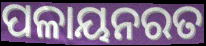
ପଳାୟନରତ